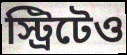
স্ট্রিটেও